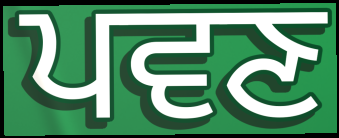
ਪਵਣ